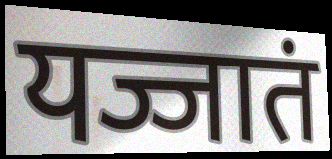
यज्जातं